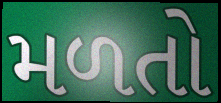
મળતો